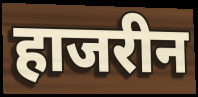
हाजरीन